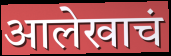
आलेखाचं